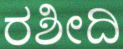
ರಶೀದಿ